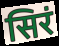
सिरं